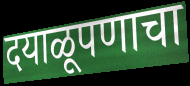
दयाळूपणाचा